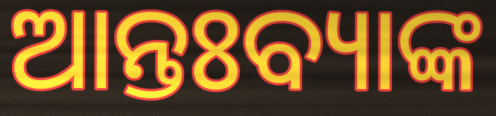
ଆନ୍ତଃବ୍ୟାଙ୍କ